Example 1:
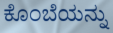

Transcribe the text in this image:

ಕೊಂಬೆಯನ್ನು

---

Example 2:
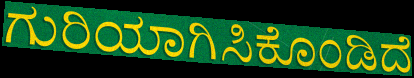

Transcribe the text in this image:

ಗುರಿಯಾಗಿಸಿಕೊಂಡಿದೆ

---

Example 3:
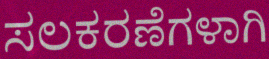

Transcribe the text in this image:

ಸಲಕರಣೆಗಳಾಗಿ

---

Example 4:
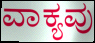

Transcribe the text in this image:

ವಾಕ್ಯವು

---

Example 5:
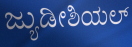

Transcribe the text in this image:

ಜ್ಯುಡೀಶಿಯಲ್